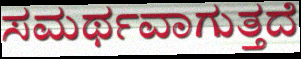
ಸಮರ್ಥವಾಗುತ್ತದೆ